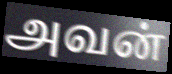
அவன்